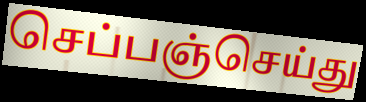
செப்பஞ்செய்து